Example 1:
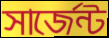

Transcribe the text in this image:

সার্জেন্ট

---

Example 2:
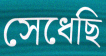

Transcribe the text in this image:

সেধেছি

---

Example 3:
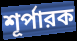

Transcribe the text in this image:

শূর্পারক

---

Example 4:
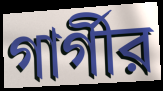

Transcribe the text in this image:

গার্গীর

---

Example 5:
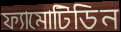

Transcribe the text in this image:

ফ্যামোটিডিন